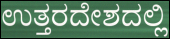
ಉತ್ತರದೇಶದಲ್ಲಿ